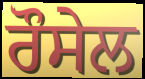
ਰੌਸੇਲ